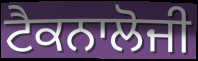
ਟੈਕਨਾਲੋਜੀ